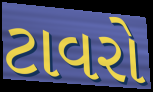
ટાવરો